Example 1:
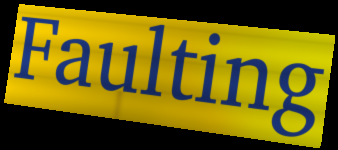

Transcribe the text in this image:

Faulting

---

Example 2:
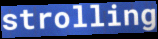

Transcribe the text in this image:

strolling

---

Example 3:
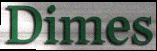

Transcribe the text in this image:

Dimes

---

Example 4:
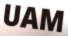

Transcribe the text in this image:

UAM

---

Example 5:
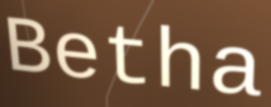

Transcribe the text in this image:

Betha